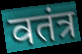
वतंत्र